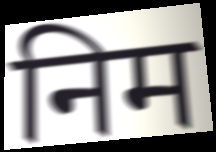
निम